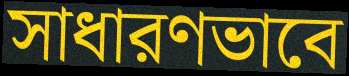
সাধারণভাবে